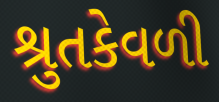
શ્રુતકેવળી